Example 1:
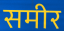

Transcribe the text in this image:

समीर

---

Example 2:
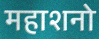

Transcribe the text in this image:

महाशनो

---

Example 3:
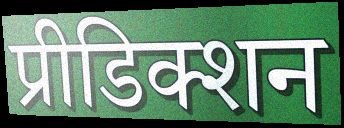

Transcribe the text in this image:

प्रीडिक्शन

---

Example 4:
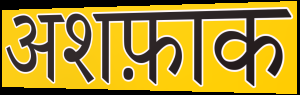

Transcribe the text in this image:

अशफ़ाक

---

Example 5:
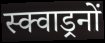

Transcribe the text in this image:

स्क्वाड्रनों